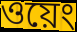
ওয়েং